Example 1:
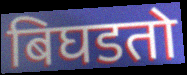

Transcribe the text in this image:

बिघडतो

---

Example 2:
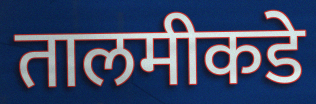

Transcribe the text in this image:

तालमीकडे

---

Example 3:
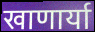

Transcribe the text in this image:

खाणार्या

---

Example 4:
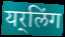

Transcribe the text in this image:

यर्लिंग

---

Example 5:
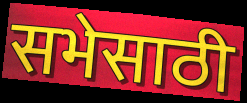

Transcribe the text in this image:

सभेसाठी